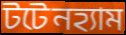
টটেনহ্যাম